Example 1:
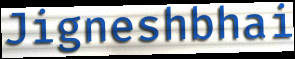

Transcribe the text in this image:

Jigneshbhai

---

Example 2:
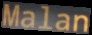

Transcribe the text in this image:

Malan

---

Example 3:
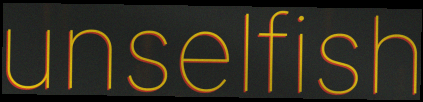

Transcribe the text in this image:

unselfish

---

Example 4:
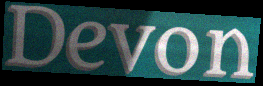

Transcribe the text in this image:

Devon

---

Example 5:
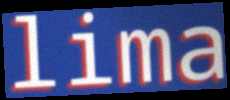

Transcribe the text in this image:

lima